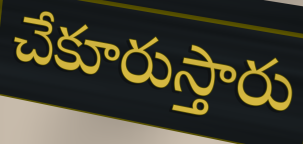
చేకూరుస్తారు